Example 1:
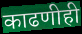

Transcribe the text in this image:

काढणीही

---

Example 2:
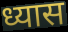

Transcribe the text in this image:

ध्यास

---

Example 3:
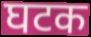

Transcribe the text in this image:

घटक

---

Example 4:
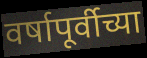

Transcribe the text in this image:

वर्षापूर्वीच्या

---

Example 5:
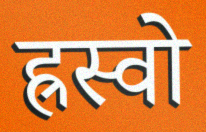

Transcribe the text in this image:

ह्रस्वो